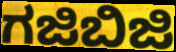
ಗಜಿಬಿಜಿ